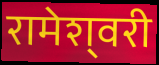
रामेश्वरी